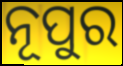
ନୂପୁର